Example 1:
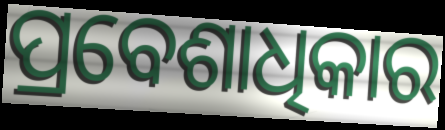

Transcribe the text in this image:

ପ୍ରବେଶାଧିକାର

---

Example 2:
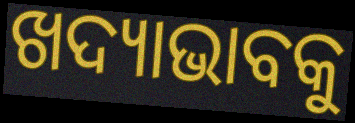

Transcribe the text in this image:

ଖଦ୍ୟାଭାବକୁ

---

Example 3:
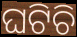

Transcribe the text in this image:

ଘଟିଚି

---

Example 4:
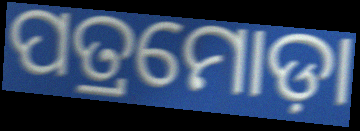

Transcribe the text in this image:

ପତ୍ରମୋଡ଼ା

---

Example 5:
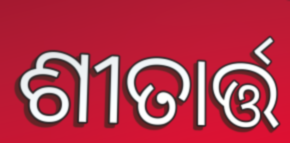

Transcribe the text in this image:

ଶୀତାର୍ତ୍ତ